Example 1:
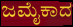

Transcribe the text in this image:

ಜಮೈಕಾದ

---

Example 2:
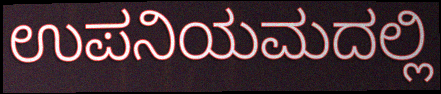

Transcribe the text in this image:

ಉಪನಿಯಮದಲ್ಲಿ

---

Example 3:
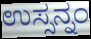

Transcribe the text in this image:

ಉಸ್ಸನ್ನಂ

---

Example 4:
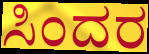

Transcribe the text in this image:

ಸಿಂದರ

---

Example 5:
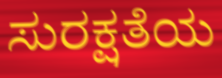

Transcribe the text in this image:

ಸುರಕ್ಷತೆಯ